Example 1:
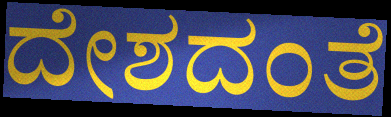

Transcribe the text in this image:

ದೇಶದಂತೆ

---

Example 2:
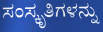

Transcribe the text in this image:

ಸಂಸ್ಕೃತಿಗಳನ್ನು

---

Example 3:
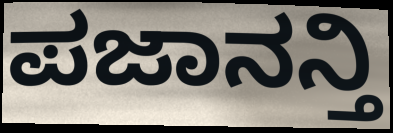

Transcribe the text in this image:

ಪಜಾನನ್ತಿ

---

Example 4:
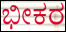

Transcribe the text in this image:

ಭೀಕರ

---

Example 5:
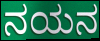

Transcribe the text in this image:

ನಯನ